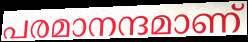
പരമാനന്ദമാണ്